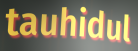
tauhidul